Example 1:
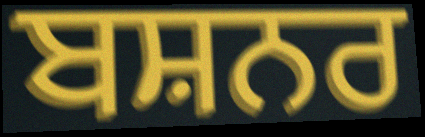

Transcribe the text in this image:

ਬਸ਼ਨਰ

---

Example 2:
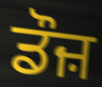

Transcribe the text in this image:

ਡੌਜ਼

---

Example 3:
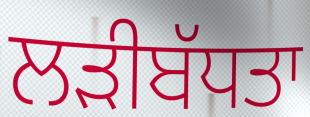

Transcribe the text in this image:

ਲੜੀਬੱਧਤਾ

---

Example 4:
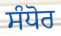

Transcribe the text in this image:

ਸੰਧੋਰ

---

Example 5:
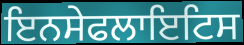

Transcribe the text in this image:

ਇਨਸੇਫਲਾਇਟਿਸ